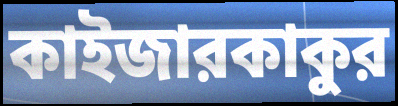
কাইজারকাকুর